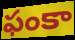
ఫంకా